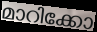
മാറിക്കോ